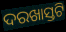
ଦରଖାସ୍ତଟି